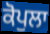
ਕੋਪੁਲਾ